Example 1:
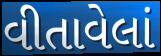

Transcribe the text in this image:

વીતાવેલાં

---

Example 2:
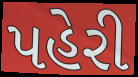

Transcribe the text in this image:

પહેરી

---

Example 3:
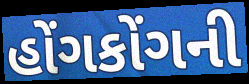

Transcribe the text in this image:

હોંગકોંગની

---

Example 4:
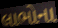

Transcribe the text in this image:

લાભોના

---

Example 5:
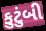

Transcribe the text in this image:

કુટુંબી